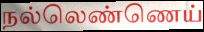
நல்லெண்ணெய்